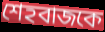
শেহবাজকে